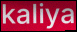
kaliya